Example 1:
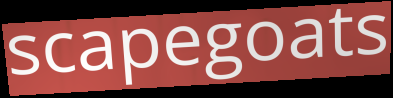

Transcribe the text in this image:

scapegoats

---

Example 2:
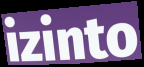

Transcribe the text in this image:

izinto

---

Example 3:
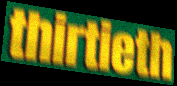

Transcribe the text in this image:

thirtieth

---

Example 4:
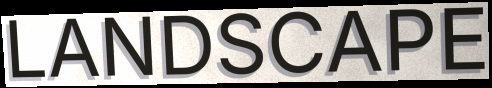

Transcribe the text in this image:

LANDSCAPE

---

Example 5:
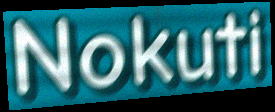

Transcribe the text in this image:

Nokuti